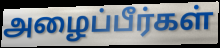
அழைப்பீர்கள்